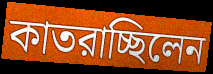
কাতরাচ্ছিলেন